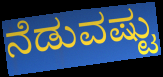
ನೆಡುವಷ್ಟು